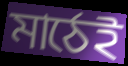
মাঠেই